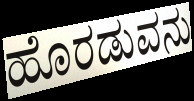
ಹೊರಡುವನು